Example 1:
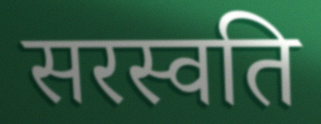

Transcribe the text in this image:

सरस्वति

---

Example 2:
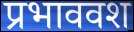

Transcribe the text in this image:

प्रभाववश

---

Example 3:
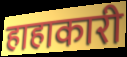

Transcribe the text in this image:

हाहाकारी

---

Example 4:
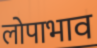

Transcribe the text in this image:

लोपाभाव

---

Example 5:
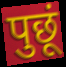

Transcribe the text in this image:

पुछूं